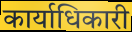
कार्याधिकारी